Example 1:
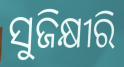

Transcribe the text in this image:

ସୁଜିକ୍ଷୀରି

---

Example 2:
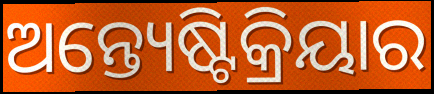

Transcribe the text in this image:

ଅନ୍ତ୍ୟେଷ୍ଟିକ୍ରିୟାର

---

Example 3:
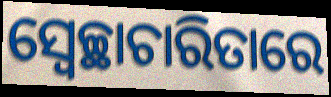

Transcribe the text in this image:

ସ୍ୱେଚ୍ଛାଚାରିତାରେ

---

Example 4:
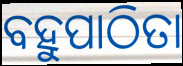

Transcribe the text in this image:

ବହୁପାଠିତା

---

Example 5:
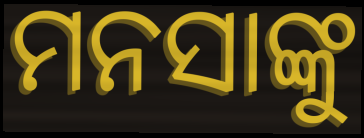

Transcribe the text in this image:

ମନସାଙ୍କୁ